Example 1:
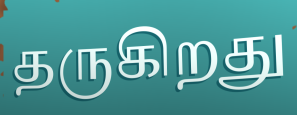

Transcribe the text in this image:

தருகிறது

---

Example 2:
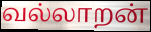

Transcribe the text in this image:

வல்லாறன்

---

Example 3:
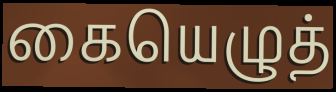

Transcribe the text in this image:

கையெழுத்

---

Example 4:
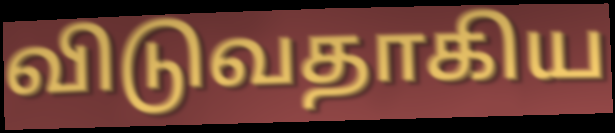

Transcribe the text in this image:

விடுவதாகிய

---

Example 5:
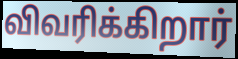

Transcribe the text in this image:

விவரிக்கிறார்